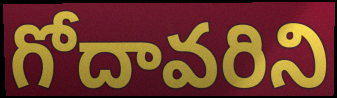
గోదావరిని